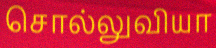
சொல்லுவியா